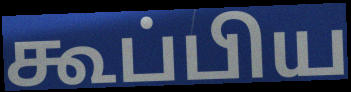
கூப்பிய